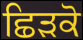
ਛਿੜਕੋ